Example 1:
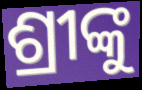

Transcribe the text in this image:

ଶ୍ରୀଙ୍କୁ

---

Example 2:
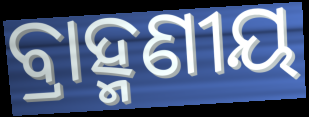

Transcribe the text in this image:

ବ୍ରାହ୍ମଣୀୟ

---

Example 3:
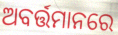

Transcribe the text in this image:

ଅବର୍ତ୍ତମାନରେ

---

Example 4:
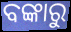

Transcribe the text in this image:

ବଙ୍କାରୁ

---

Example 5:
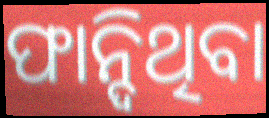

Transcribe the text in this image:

ଫାନ୍ଦିଥିବା